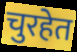
चुरहेत